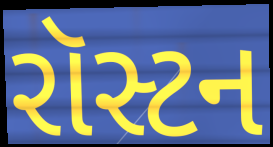
રૉસ્ટન